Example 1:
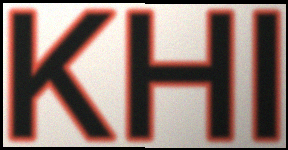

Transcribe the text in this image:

KHI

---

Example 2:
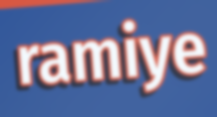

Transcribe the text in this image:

ramiye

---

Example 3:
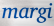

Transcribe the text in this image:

margi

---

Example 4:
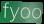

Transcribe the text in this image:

fyoo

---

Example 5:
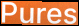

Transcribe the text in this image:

Pures